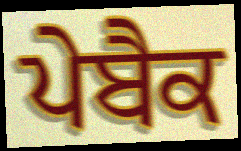
ਪੇਬੈਕ